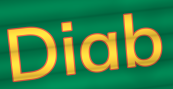
Diab